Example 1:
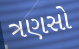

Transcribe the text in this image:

ત્રણસો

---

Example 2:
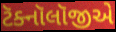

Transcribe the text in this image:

ટૅક્નૉલૉજીએ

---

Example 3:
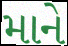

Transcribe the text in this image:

માને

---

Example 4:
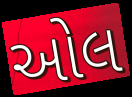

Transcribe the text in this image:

ઓલ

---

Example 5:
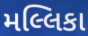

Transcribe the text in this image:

મલ્લિકા